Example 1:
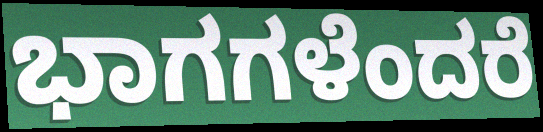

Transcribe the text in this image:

ಭಾಗಗಳೆಂದರೆ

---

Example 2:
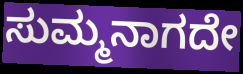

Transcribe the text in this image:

ಸುಮ್ಮನಾಗದೇ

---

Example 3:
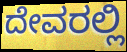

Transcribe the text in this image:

ದೇವರಲ್ಲಿ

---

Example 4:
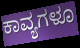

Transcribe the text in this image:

ಕಾವ್ಯಗಳೂ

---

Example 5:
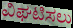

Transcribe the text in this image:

ವಿಘಟಿಸಲು